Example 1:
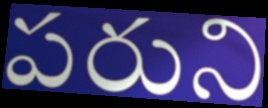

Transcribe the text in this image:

పరుని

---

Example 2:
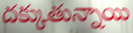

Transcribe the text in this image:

దక్కుతున్నాయి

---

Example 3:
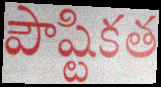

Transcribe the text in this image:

పౌష్టికత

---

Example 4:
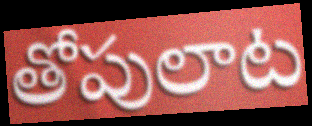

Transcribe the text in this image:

తోపులాట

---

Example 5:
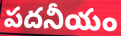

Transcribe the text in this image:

పదనీయం